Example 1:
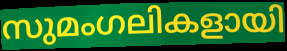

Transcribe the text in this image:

സുമംഗലികളായി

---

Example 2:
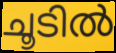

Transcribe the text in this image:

ചൂടിൽ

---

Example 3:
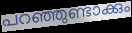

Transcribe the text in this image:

പറഞ്ഞുണ്ടാക്കും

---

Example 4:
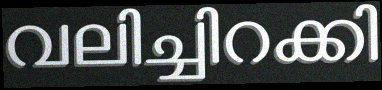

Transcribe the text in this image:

വലിച്ചിറക്കി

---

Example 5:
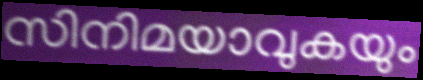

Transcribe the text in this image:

സിനിമയാവുകയും